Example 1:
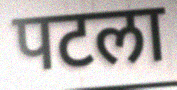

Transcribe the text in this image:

पटला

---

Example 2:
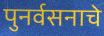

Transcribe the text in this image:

पुनर्वसनाचे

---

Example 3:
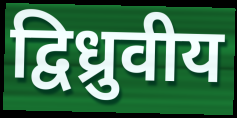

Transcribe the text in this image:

द्विध्रुवीय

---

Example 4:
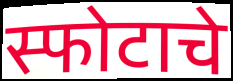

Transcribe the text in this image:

स्फोटाचे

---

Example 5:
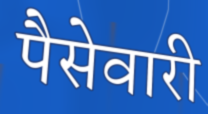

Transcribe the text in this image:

पैसेवारी